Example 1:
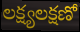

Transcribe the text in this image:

లక్ష్యలక్షణో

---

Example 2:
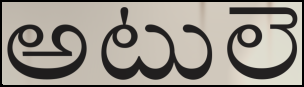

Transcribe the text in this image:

అటులె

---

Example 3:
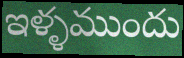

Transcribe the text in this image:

ఇళ్ళముందు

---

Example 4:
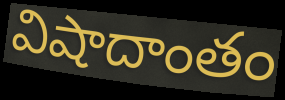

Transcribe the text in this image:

విషాదాంతం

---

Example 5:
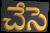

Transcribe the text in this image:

చేసె